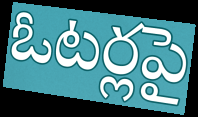
ఓటర్లపై